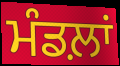
ਮੰਡਲ਼ਾਂ